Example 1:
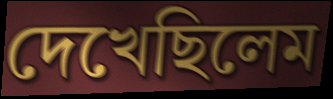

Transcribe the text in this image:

দেখেছিলেম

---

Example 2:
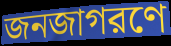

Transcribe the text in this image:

জনজাগরণে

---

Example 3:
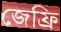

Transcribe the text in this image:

জেফ্রি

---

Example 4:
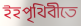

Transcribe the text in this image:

ইহপৃথিবীতে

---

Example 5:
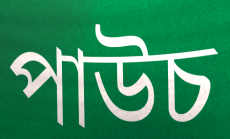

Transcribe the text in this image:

পাউচ